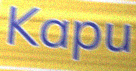
Kapu